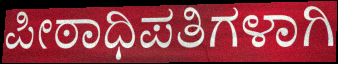
ಪೀಠಾಧಿಪತಿಗಳಾಗಿ